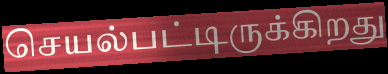
செயல்பட்டிருக்கிறது